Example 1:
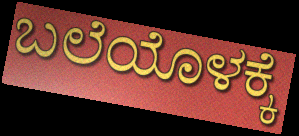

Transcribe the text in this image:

ಬಲೆಯೊಳಕ್ಕೆ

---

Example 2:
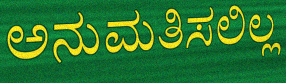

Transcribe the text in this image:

ಅನುಮತಿಸಲಿಲ್ಲ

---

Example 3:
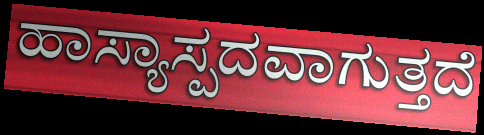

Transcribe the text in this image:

ಹಾಸ್ಯಾಸ್ಪದವಾಗುತ್ತದೆ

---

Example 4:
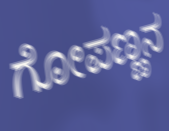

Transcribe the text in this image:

ಗೋಪಣ್ಣನ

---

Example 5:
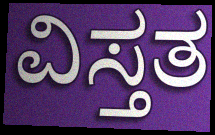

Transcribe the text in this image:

ವಿಸ್ತತ